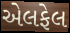
એલફેલ